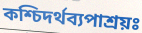
কশ্চিদর্থব্যপাশ্রয়ঃ